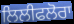
ਲਿਲੀਫਲੋਰਾ